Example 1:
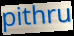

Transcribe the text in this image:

pithru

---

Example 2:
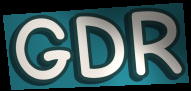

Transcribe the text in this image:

GDR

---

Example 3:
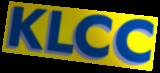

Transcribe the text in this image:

KLCC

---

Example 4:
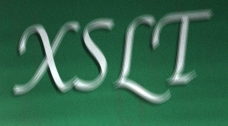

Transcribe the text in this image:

XSLT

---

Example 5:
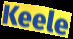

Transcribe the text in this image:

Keele